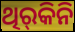
ଥିର୍‍କିନି